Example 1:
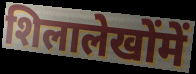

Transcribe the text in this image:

शिलालेखोंमें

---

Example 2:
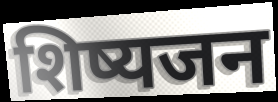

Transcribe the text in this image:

शिष्यजन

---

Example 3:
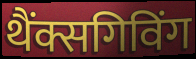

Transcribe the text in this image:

थैंक्सगिविंग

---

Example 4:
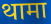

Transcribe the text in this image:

थामा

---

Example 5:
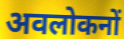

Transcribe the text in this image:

अवलोकनों